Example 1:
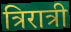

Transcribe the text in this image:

त्रिरात्री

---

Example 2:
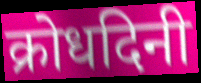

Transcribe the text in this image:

क्रोधदिनी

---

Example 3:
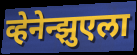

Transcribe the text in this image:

व्हेनेन्झुएला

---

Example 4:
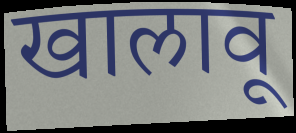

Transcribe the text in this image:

खालावू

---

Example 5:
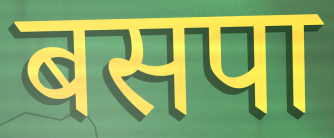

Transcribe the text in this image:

बसपा